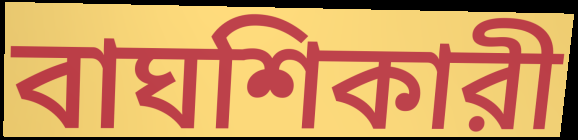
বাঘশিকারী